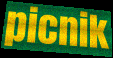
picnik